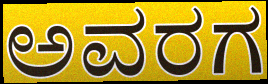
ಅವರಗ